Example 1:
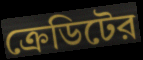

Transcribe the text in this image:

ক্রেডিটের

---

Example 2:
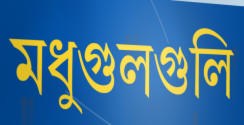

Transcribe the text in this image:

মধুগুলগুলি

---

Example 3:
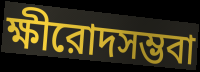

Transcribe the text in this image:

ক্ষীরোদসম্ভবা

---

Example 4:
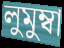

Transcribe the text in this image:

লুমুম্বা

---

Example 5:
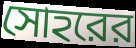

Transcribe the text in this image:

সোহরের